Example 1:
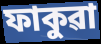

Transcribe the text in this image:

ফাকুৱা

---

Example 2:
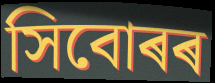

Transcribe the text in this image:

সিবোৰৰ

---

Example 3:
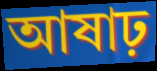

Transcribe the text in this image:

আষাঢ়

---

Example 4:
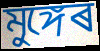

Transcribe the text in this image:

মুঙ্গেৰ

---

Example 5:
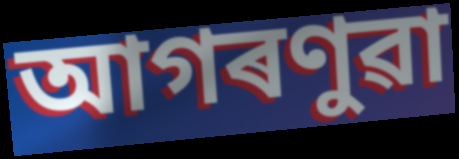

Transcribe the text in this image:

আগৰণুৱা